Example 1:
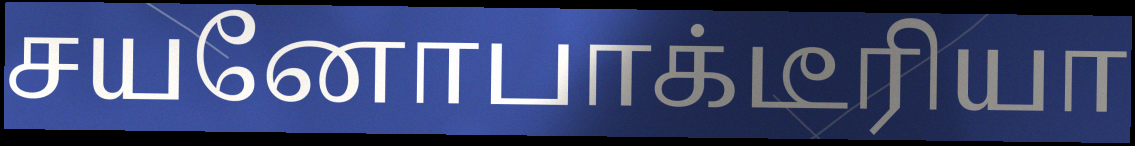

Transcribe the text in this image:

சயனோபாக்டீரியா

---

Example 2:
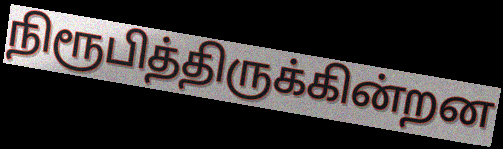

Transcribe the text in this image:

நிரூபித்திருக்கின்றன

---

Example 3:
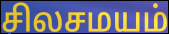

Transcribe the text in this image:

சிலசமயம்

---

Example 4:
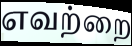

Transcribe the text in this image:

எவற்றை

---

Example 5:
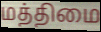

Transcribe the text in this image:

மத்திமை